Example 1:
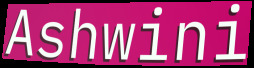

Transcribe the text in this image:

Ashwini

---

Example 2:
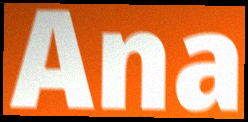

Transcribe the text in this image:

Ana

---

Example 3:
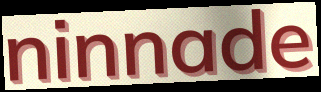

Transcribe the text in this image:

ninnade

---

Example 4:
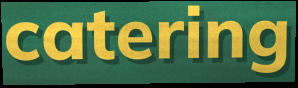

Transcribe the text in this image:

catering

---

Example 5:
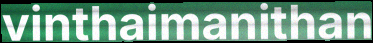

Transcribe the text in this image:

vinthaimanithan